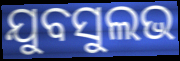
ଯୁବସୁଲଭ